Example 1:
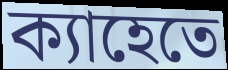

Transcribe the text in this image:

ক্যাহেতে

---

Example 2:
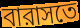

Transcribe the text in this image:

বারাসতে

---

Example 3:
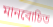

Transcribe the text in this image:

মানবোচিত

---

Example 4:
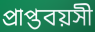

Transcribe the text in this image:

প্রাপ্তবয়সী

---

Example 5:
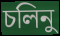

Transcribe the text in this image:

চলিনু